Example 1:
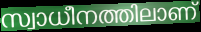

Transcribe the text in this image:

സ്വാധീനത്തിലാണ്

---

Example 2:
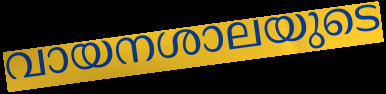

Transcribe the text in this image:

വായനശാലയുടെ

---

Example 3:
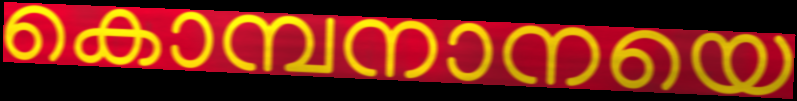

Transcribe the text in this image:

കൊമ്പനാനയെ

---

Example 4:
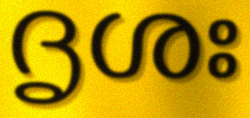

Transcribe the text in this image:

ദൃശഃ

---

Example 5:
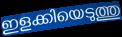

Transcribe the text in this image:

ഇളക്കിയെടുത്തു